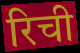
रिची